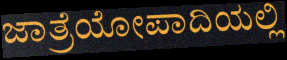
ಜಾತ್ರೆಯೋಪಾದಿಯಲ್ಲಿ